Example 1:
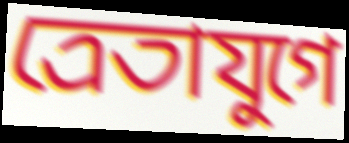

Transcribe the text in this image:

ত্রেতাযুগে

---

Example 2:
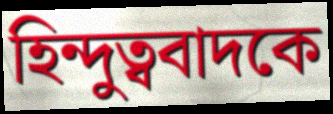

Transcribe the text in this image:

হিন্দুত্ববাদকে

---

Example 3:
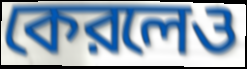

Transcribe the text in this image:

কেরলেও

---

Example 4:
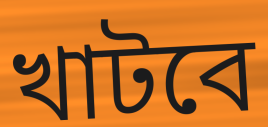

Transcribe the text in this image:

খাটবে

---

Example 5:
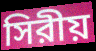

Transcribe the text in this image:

সিরীয়